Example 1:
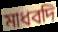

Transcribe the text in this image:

মাধবদি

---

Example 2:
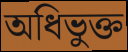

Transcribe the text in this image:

অধিভুক্ত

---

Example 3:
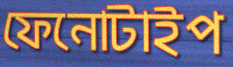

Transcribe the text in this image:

ফেনোটাইপ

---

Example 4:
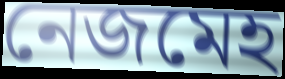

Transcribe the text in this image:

নেজমেহ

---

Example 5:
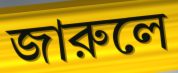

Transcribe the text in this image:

জারুলে